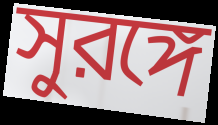
সুরঙ্গে